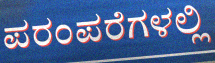
ಪರಂಪರೆಗಳಲ್ಲಿ